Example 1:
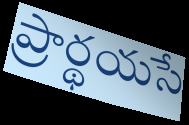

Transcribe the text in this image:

ప్రార్థయసే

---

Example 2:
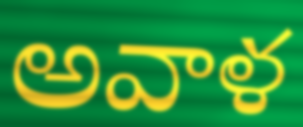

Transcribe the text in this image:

అవాళ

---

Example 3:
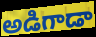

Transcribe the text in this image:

అడిగాడా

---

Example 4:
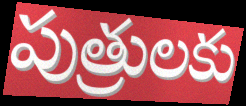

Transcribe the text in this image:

పుత్రులకు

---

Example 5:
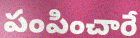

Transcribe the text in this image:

పంపించారే